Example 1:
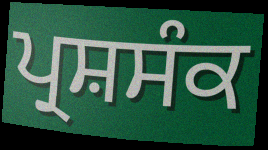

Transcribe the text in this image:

ਪ੍ਰਸ਼ਸੰਕ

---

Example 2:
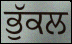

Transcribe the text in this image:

ਭੁੱਕਲ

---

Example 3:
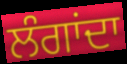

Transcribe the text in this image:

ਲੰਗਾਂਦਾ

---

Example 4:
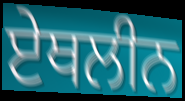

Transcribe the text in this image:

ਏਥਲੀਨ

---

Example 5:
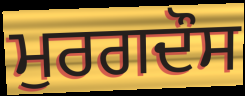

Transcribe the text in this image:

ਮੁਰਗਦੌਸ